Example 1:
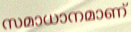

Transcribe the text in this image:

സമാധാനമാണ്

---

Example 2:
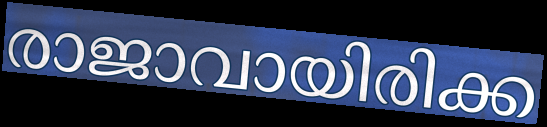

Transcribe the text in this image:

രാജാവായിരിക്ക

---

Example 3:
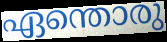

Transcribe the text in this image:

ഏന്തൊരു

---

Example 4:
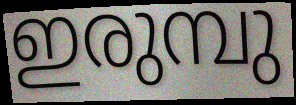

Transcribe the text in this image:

ഇരുമ്പു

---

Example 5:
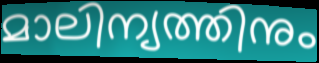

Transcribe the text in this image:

മാലിന്യത്തിനും